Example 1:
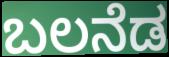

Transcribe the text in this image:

ಬಲನೆಡ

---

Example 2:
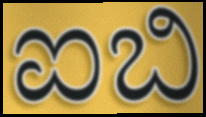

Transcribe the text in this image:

ಐಬಿ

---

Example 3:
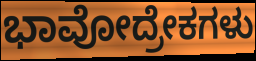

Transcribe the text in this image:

ಭಾವೋದ್ರೇಕಗಳು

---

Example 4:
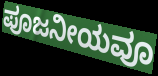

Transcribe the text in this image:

ಪೂಜನೀಯವೂ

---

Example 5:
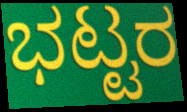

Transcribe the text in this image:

ಭಟ್ಟರ